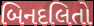
બિનદલિતો